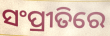
ସଂପ୍ରୀତିରେ